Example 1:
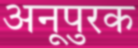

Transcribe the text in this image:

अनूपुरक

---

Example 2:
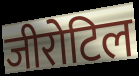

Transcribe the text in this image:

जीरोटिल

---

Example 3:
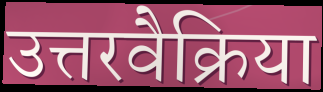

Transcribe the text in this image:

उत्तरवैक्रिया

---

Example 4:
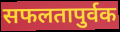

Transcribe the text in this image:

सफलतापुर्वक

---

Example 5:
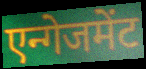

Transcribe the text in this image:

एन्गेजमेंट